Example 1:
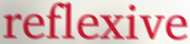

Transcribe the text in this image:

reflexive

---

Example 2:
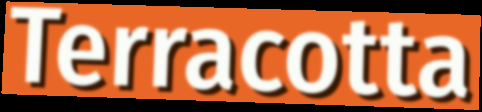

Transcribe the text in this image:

Terracotta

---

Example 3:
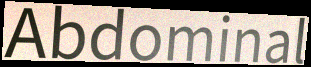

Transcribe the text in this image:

Abdominal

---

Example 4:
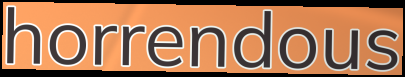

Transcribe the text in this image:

horrendous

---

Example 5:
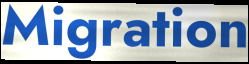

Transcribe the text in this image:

Migration